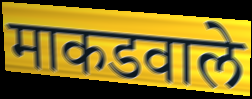
माकडवाले